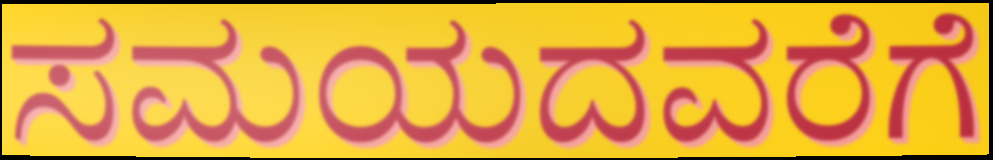
ಸಮಯದವರೆಗೆ